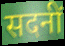
सदनीं